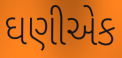
ઘણીએક